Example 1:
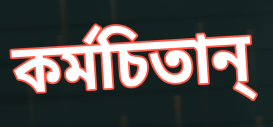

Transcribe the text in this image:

কর্মচিতান্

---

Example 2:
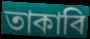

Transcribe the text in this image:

তাকাবি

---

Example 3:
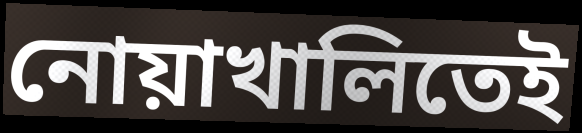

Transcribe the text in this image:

নোয়াখালিতেই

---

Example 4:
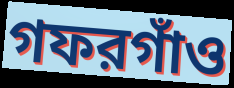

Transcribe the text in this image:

গফরগাঁও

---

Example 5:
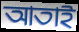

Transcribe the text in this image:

আতাই